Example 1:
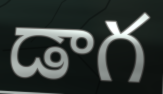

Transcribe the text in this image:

డాగ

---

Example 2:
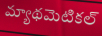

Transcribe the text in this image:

మ్యాథమెటికల్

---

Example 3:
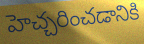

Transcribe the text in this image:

హెచ్చరించడానికి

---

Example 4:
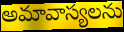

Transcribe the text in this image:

అమావాస్యలను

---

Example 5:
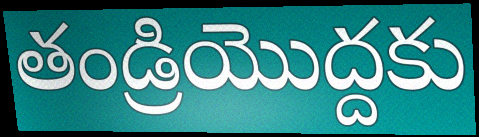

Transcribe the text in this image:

తండ్రియొద్దకు